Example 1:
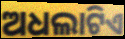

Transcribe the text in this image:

ଅଧଲାଟିଏ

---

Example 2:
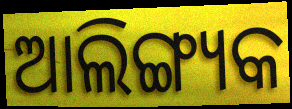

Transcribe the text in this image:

ଆଲିଙ୍ଗ୍ୟକ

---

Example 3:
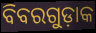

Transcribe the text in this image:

ବିବରଗୁଡ଼ାକ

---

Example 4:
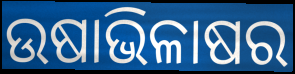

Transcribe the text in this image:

ଉଷାଭିଳାଷର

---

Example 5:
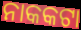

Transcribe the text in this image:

ନାକକଟା